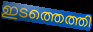
ഇടത്തെത്തി